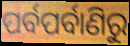
ପର୍ବପର୍ବାଣିରୁ